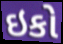
ઇકો